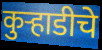
कुऱ्हाडीचे